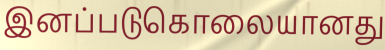
இனப்படுகொலையானது